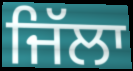
ਜਿੱਲਾ